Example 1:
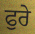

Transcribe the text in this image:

ਫੁਰੇ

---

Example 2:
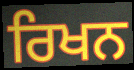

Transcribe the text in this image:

ਰਿਖਨ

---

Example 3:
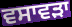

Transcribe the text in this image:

ਵਸਾਵੜਾ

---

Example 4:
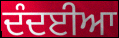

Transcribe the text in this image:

ਦੰਦਈਆ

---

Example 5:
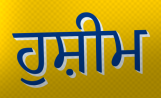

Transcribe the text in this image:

ਹੁਸ਼ੀਮ